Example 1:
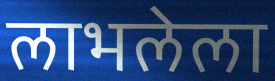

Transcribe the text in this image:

लाभलेला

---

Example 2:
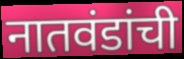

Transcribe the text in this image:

नातवंडांची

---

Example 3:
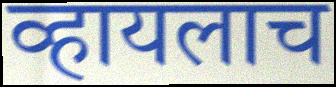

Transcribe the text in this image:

व्हायलाच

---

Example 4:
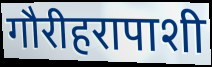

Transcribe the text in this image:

गौरीहरापाशी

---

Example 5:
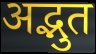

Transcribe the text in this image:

अद्भुत